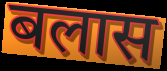
बलास